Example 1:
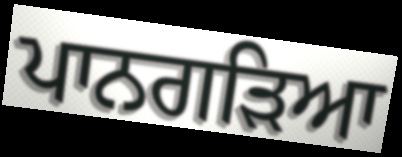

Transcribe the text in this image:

ਪਾਨਗੜਿਆ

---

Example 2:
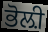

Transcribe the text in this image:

ਭੋਲ਼ੀ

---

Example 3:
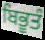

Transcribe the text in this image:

ਬਿਭੂਤੰ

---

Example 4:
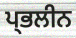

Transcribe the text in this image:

ਪ੍ਭਲੀਨ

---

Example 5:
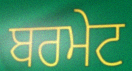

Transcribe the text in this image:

ਬਰਮੇਟ